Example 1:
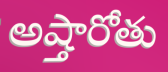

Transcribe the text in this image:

అష్తారోతు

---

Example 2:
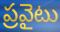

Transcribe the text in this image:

ప్రవైటు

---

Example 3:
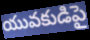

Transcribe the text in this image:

యువకుడిపై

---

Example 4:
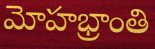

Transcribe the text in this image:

మోహభ్రాంతి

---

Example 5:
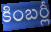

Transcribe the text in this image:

కింబర్లీ